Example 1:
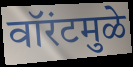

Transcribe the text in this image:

वॉरंटमुळे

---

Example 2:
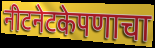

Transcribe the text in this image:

नीटनेटकेपणाचा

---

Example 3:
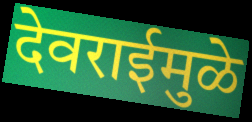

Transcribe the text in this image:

देवराईमुळे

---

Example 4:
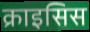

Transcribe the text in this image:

क्राइसिस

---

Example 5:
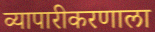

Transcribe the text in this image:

व्यापारीकरणाला